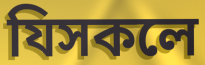
যিসকলে